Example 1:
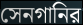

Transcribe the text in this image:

সেনগানির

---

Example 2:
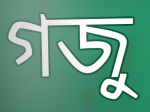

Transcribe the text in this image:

গজু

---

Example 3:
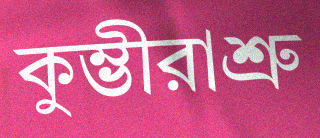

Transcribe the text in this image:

কুম্ভীরাশ্রু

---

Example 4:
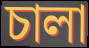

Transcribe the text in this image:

চালা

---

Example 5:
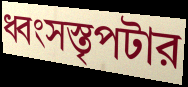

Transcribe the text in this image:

ধ্বংসস্তৃপটার